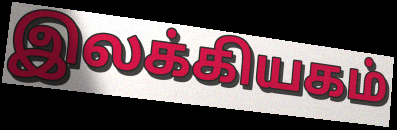
இலக்கியகம்